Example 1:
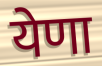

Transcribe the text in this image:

येणा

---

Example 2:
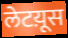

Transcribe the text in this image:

लेटय़ूस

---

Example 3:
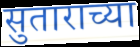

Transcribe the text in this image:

सुताराच्या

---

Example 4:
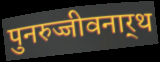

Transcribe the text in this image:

पुनरुज्जीवनार्थ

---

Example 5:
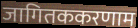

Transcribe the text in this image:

जागितककरणाम